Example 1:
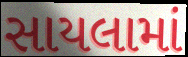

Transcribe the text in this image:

સાયલામાં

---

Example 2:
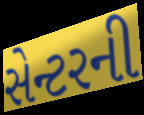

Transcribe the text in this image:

સેન્ટરની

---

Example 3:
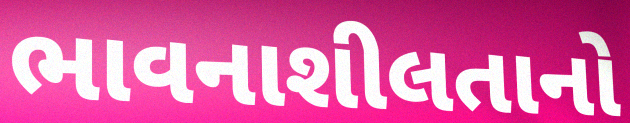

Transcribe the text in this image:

ભાવનાશીલતાનો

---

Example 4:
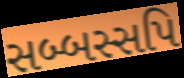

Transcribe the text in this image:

સબ્બસ્સપિ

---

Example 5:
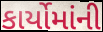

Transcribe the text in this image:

કાર્યોમાંની